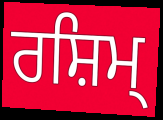
ਰਸ਼ਿਮ੍